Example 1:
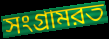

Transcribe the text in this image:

সংগ্রামরত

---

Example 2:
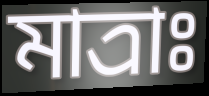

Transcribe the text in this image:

মাত্রাঃ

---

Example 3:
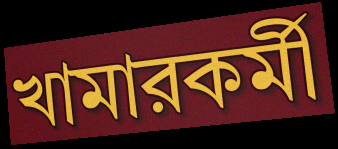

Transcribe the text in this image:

খামারকর্মী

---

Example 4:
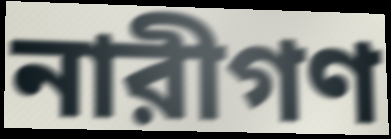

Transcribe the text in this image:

নারীগণ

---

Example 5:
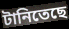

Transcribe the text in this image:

টানিতেছে